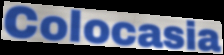
Colocasia